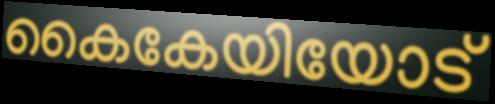
കൈകേയിയോട്